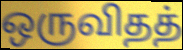
ஒருவிதத்